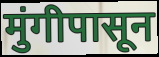
मुंगीपासून